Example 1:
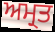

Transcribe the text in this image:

ਅਮ੍ਰਤ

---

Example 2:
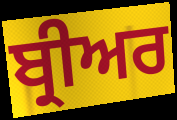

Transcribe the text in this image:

ਬ੍ਰੀਅਰ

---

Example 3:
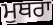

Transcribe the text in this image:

ਮੁਥਰਾ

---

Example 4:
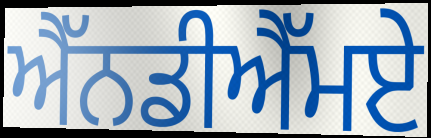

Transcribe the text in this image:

ਐੱਨਡੀਐੱਮਏ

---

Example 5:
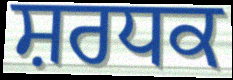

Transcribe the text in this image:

ਸ਼ਰਧਕ